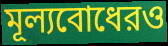
মূল্যবোধেরও